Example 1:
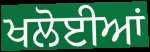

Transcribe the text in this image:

ਖਲੋਈਆਂ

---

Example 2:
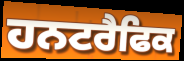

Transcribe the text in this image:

ਹਨਟਰੈਫਿਕ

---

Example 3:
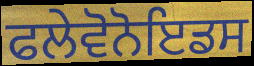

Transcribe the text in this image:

ਫਲੇਵੋਨੋਇਡਸ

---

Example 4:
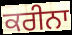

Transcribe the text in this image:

ਕਰੀਨਾ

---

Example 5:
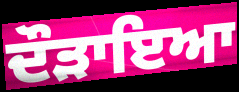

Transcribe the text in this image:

ਦੌੜਾਇਆ